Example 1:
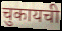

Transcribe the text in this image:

चुकायची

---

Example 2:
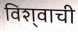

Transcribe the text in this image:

विश्वाची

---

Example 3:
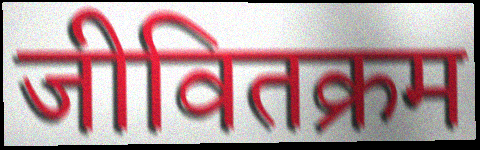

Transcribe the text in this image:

जीवितक्रम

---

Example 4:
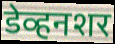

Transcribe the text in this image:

डेव्हनशर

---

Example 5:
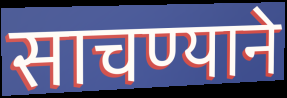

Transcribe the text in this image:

साचण्याने